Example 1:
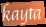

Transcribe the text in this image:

kayta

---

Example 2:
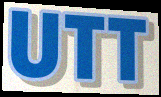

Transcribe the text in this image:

UTT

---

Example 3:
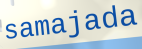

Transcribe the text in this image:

samajada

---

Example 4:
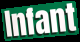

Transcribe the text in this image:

Infant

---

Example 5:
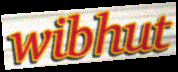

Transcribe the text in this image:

wibhut